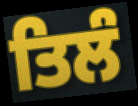
ਤਿਲੰ